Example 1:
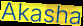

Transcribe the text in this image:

Akasha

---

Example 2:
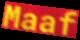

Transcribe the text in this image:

Maaf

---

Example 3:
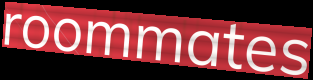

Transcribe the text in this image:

roommates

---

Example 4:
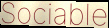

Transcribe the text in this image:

Sociable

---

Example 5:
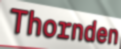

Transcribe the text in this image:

Thornden